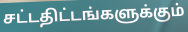
சட்டதிட்டங்களுக்கும்